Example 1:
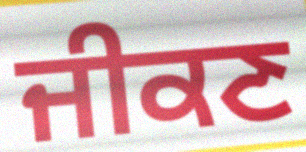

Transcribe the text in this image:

ਜੀਕਣ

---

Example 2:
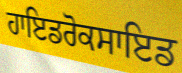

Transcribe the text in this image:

ਹਾਇਡਰੋਕਸਾਇਡ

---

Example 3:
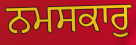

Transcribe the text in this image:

ਨਮਸਕਾਰੁ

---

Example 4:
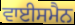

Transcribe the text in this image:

ਵਾਈਸਮੈਨ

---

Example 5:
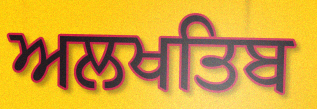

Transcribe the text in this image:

ਅਲਖਤਿਬ